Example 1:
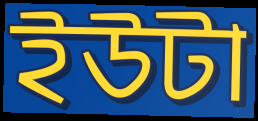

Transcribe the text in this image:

ইউটা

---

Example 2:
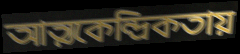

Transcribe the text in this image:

আত্মকেন্দ্রিকতায়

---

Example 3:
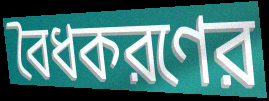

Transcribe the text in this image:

বৈধকরণের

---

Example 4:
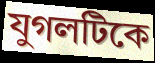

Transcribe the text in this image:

যুগলটিকে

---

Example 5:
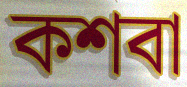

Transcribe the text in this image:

কশবা